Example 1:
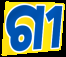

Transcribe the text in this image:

ଗୀ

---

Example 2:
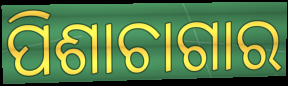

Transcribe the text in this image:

ପିଶାଚାଗାର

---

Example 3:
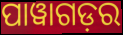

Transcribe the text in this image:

ପାୱାଗଡ଼ର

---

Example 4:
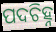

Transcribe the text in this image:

ପଦଚିହ୍ନ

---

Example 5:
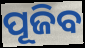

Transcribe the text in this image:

ପୂଜିବ